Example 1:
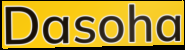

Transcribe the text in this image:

Dasoha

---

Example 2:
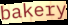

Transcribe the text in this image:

bakery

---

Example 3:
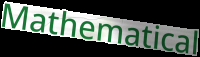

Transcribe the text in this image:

Mathematical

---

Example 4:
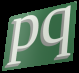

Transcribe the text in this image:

pq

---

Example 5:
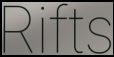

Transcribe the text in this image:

Rifts